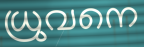
ധ്രുവനെ